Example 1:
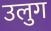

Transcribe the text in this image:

उलुग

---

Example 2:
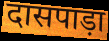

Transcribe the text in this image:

दासपाड़ा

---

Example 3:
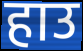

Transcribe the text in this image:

हाउ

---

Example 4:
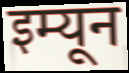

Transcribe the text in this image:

इम्यून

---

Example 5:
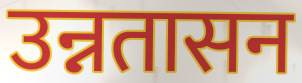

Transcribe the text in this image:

उन्नतासन